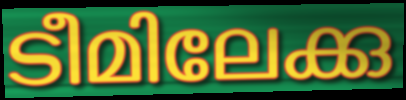
ടീമിലേക്കു